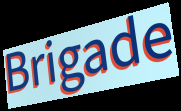
Brigade